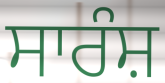
ਸਾਰੰਸ਼